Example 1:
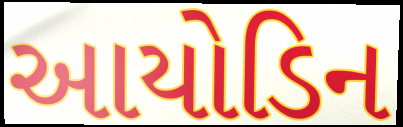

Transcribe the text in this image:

આયોડિન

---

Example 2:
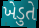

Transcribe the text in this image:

ખેડુતે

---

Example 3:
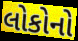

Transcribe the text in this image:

લોકોનો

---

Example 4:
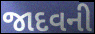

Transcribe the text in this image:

જાદવની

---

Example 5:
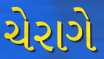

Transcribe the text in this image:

ચેરાગે